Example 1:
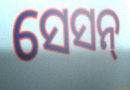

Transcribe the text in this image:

ସେସନ୍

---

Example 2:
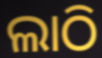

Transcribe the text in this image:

ଲାଠି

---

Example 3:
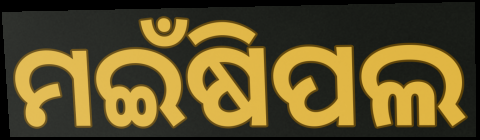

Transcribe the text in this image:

ମଇଁଷିପଲ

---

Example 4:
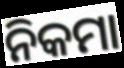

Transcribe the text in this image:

ନିକମା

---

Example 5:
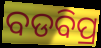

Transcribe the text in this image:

ବଡବିପ୍ର